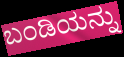
ಬಂಡಿಯನ್ನು